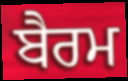
ਬੈਰਮ